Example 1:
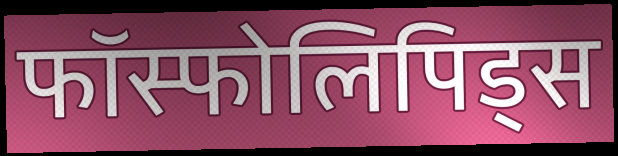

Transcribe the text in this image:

फॉस्फोलिपिड्स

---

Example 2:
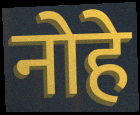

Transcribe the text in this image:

नोहे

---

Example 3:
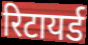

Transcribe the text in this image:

रिटायर्ड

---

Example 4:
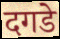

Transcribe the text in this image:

दगडे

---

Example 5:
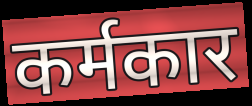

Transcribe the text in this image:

कर्मकार